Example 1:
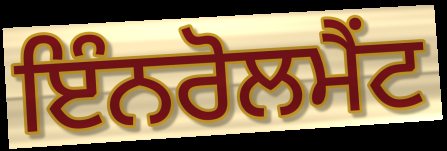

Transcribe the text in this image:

ਇੰਨਰੋਲਮੈਂਟ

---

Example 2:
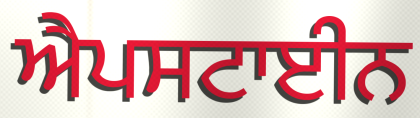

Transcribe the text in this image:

ਐਪਸਟਾਈਨ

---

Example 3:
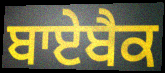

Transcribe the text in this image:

ਬਾਏਬੈਕ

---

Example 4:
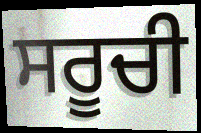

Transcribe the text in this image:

ਸਰੂਚੀ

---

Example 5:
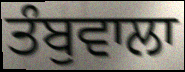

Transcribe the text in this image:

ਤੰਬੁਵਾਲਾ